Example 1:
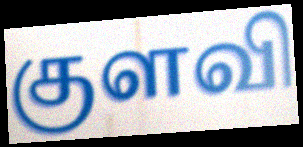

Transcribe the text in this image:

குளவி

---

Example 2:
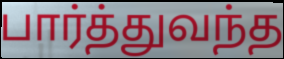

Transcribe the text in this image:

பார்த்துவந்த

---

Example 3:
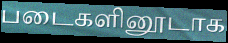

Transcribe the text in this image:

படைகளினூடாக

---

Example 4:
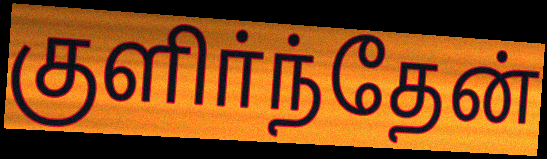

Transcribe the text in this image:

குளிர்ந்தேன்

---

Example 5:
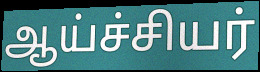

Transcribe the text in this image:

ஆய்ச்சியர்